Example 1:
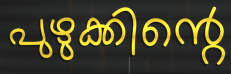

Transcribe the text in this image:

പുഴുക്കിന്റെ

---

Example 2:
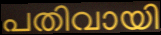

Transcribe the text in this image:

പതിവായി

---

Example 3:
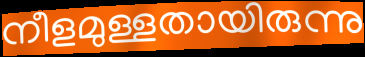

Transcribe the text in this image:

നീളമുള്ളതായിരുന്നു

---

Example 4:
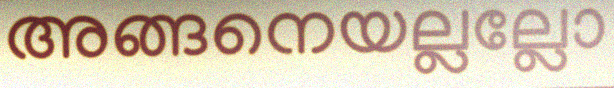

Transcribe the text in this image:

അങ്ങനെയല്ലല്ലോ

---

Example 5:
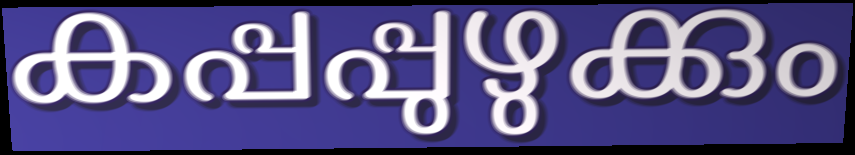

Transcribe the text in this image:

കപ്പപ്പുഴുക്കും